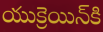
యుక్రెయిన్‌కి